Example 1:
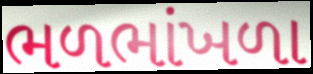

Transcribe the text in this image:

ભળભાંખળા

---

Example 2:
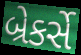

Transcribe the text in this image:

બ્રેકર્સે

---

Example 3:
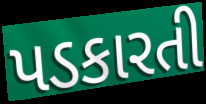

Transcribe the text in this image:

પડકારતી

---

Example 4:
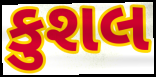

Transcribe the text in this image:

કુશલ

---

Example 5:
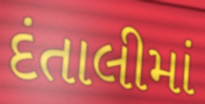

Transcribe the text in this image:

દંતાલીમાં